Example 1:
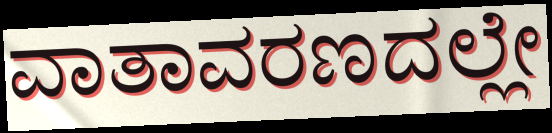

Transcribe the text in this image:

ವಾತಾವರಣದಲ್ಲೇ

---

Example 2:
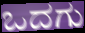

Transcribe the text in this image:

ಒದಗು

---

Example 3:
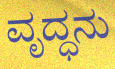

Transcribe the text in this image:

ವೃದ್ಧನು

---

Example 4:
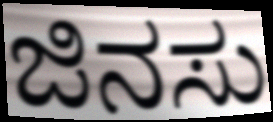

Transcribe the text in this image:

ಜಿನಸು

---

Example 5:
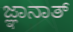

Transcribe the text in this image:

ಜ್ಞಾನಾತ್